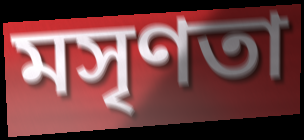
মসৃণতা